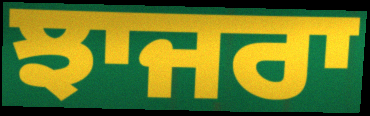
ਝਾਜਰਾ